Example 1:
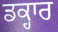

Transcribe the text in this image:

ਡਕ੍ਹਾਰ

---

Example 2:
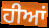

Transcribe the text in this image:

ਹੀਆਂ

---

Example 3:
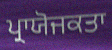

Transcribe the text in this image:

ਪ੍ਰਾਯੋਜਕਤਾ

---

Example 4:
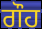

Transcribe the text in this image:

ਗੌਹ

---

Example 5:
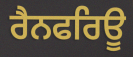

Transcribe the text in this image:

ਰੈਨਫਰਿਊ